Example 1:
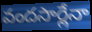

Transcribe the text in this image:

వందసార్లేనా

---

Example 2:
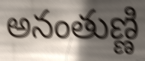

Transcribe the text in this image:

అనంతుణ్ణి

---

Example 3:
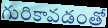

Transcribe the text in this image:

గురికావడంతో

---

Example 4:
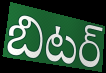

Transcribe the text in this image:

బిటర్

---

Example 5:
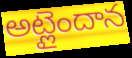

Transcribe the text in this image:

అట్లైందాన